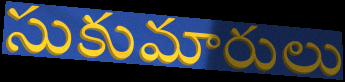
సుకుమారులు